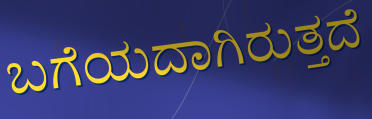
ಬಗೆಯದಾಗಿರುತ್ತದೆ